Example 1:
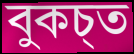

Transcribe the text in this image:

বুকচ্ত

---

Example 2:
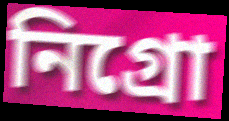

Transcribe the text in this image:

নিগ্ৰো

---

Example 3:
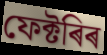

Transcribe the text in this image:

ফেক্টৰিৰ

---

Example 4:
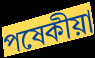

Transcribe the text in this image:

পষেকীয়া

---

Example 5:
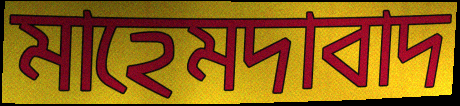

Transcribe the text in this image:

মাহেমদাবাদ